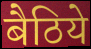
बैठिये